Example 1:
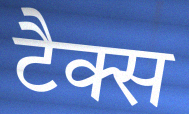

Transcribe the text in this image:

टैक्स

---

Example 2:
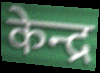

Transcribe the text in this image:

केन्‍द्र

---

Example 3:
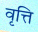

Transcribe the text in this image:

वृत्ति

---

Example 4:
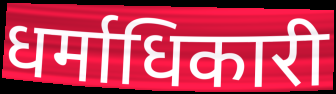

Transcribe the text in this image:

धर्माधिकारी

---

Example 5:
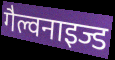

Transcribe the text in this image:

गैल्वनाइज्ड